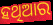
ହଥିଆର